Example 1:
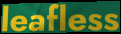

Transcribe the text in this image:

leafless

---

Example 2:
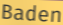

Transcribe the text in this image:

Baden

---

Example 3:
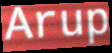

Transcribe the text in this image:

Arup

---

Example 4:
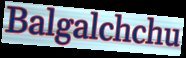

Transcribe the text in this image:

Balgalchchu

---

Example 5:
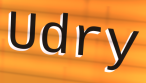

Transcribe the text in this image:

Udry